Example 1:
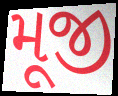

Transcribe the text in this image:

મૂજી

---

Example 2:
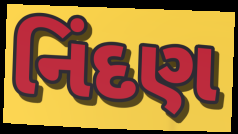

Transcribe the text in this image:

નિંદણ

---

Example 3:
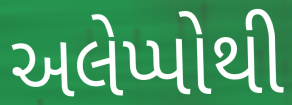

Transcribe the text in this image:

અલેપ્પોથી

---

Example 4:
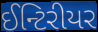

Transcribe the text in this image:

ઈન્ટિરીયર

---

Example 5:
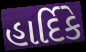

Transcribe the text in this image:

હાર્દિકે